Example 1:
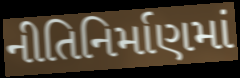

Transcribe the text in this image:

નીતિનિર્માણમાં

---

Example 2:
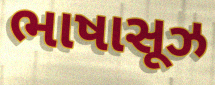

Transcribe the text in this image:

ભાષાસૂઝ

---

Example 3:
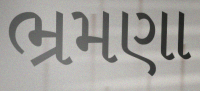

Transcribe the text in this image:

ભ્રમણા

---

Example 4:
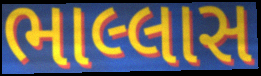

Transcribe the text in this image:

ભાલ્લાસ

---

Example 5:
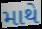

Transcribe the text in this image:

માથે